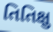
તિતિક્ષુ